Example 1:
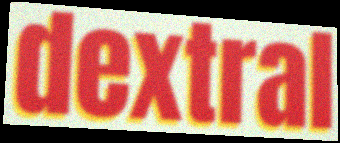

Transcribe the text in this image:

dextral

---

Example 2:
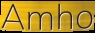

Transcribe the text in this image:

Amho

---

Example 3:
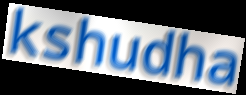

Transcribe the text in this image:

kshudha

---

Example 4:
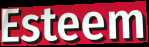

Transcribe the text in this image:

Esteem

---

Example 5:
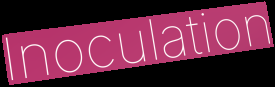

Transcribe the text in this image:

Inoculation